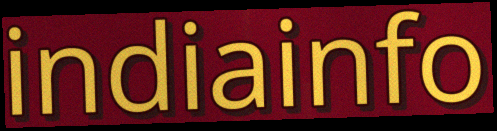
indiainfo